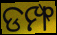
ଡମ୍ଫ